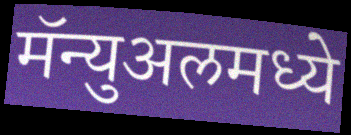
मॅन्युअलमध्ये